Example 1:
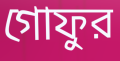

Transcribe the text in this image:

গোফুর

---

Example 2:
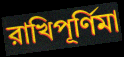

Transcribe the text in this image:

রাখিপূর্ণিমা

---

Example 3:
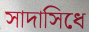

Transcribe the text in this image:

সাদাসিধে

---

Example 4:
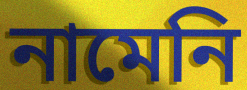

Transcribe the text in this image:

নামেনি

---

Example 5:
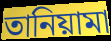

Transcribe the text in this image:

তানিয়ামা